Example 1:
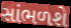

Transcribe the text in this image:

સાંભળશે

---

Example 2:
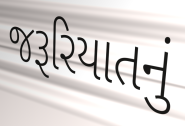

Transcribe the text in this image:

જરૂરિયાતનું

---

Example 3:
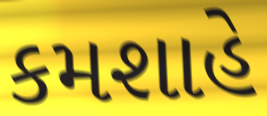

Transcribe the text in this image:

કમશાહે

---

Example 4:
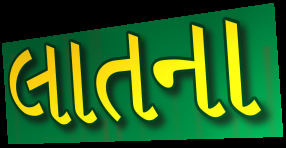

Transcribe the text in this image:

લાતના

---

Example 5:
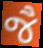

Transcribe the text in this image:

જૈ